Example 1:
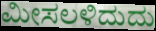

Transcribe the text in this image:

ಮೀಸಲಳಿದುದು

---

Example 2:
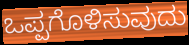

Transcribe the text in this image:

ಒಪ್ಪಗೊಳಿಸುವುದು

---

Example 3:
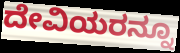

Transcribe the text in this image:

ದೇವಿಯರನ್ನೂ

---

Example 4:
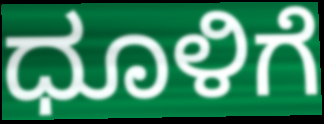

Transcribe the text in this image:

ಧೂಳಿಗೆ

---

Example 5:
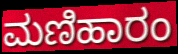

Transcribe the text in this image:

ಮಣಿಹಾರಂ